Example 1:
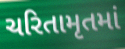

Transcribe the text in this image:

ચરિતામૃતમાં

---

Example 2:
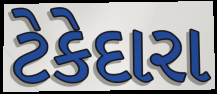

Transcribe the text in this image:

ટેકેદારા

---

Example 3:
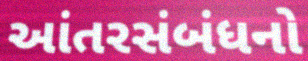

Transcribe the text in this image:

આંતરસંબંધનો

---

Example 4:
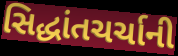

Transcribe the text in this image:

સિદ્ધાંતચર્ચાની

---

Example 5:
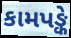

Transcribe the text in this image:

કામપઙ્કે